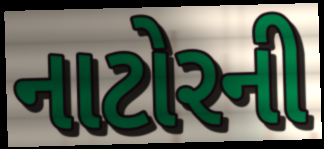
નાટોરની